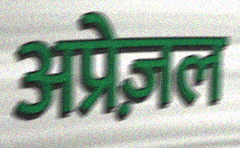
अप्रेज़ल